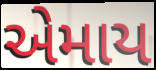
એમાય